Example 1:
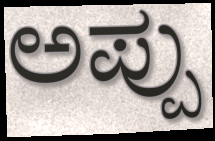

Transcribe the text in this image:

ಅಪ್ಪು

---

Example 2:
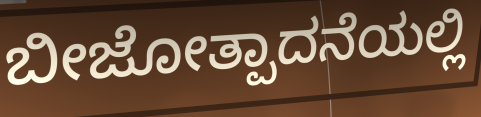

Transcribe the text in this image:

ಬೀಜೋತ್ಪಾದನೆಯಲ್ಲಿ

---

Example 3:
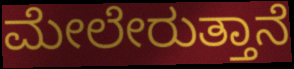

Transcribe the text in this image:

ಮೇಲೇರುತ್ತಾನೆ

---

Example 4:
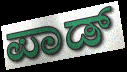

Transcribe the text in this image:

ಪಾಡ್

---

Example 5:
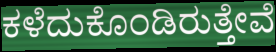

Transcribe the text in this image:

ಕಳೆದುಕೊಂಡಿರುತ್ತೇವೆ